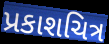
પ્રકાશચિત્ર